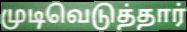
முடிவெடுத்தார்